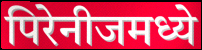
पिरेनीजमध्ये